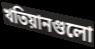
খতিয়ানগুলো